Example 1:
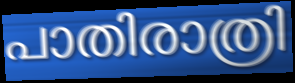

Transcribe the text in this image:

പാതിരാത്രി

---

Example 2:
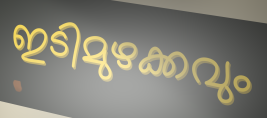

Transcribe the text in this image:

ഇടിമുഴക്കവും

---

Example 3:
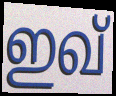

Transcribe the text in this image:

ഇഖ്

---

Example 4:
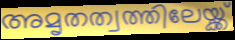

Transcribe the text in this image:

അമൃതത്വത്തിലേയ്ക്ക്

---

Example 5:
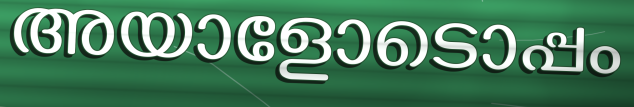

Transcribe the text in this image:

അയാളോടൊപ്പം